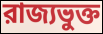
রাজ্যভুক্ত